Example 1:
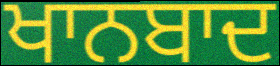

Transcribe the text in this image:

ਖਾਨਬਾਦ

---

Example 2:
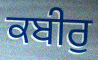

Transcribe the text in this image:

ਕਬੀਰੁ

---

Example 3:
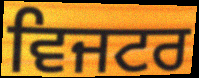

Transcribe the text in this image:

ਵਿਜਟਰ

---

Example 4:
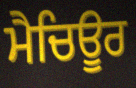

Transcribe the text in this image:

ਮੈਚਿਊਰ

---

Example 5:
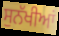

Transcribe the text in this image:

ਸੁਨੱਖੀਆਂ